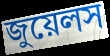
জুয়েলস